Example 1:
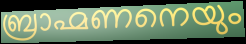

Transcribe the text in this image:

ബ്രാഹ്മണനെയും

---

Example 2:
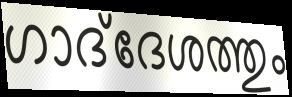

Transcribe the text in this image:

ഗാദ്‌ദേശത്തും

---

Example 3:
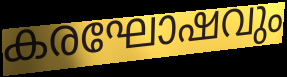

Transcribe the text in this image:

കരഘോഷവും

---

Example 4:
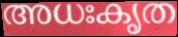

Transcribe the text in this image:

അധഃകൃത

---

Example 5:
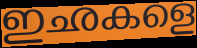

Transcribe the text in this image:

ഇഛകളെ